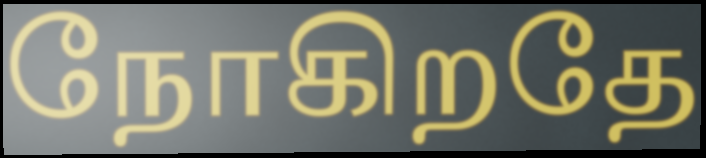
நோகிறதே